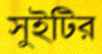
সুইটির